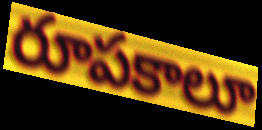
రూపకాలూ